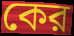
কের